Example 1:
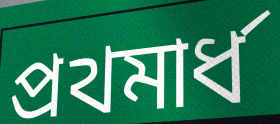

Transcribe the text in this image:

প্রথমার্ধ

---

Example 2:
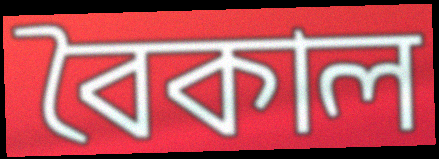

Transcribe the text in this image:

বৈকাল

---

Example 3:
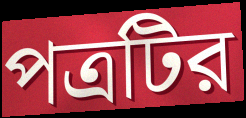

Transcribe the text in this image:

পত্রটির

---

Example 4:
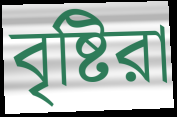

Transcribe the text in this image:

বৃষ্টিরা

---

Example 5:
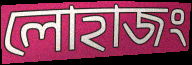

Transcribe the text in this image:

লোহাজং